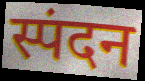
स्पंदन